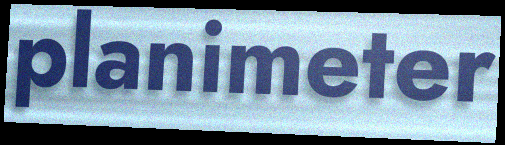
planimeter